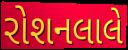
રોશનલાલે